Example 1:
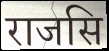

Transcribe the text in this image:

राजसि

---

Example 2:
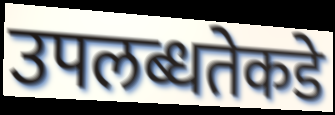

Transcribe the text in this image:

उपलब्धतेकडे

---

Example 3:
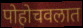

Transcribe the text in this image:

पोहोचवलात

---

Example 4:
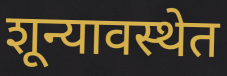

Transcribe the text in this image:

शून्यावस्थेत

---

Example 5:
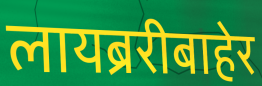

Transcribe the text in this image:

लायब्ररीबाहेर